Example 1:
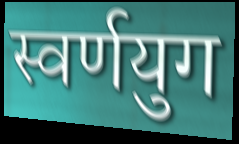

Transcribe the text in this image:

स्वर्णयुग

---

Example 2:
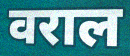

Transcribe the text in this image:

वराल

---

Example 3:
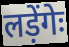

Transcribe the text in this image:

लड़ेंगेः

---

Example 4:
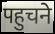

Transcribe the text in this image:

पहुचने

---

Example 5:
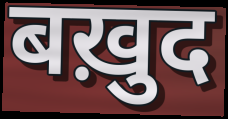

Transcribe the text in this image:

बख़ुद